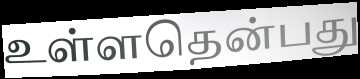
உள்ளதென்பது